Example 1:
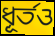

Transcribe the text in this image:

ধূর্তও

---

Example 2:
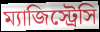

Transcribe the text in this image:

ম্যাজিস্ট্রেসি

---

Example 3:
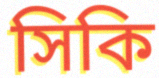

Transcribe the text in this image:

সিকি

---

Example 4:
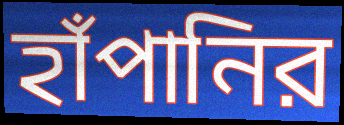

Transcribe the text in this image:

হাঁপানির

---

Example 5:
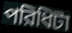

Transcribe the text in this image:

পরিধিটা